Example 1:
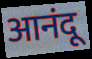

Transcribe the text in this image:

आनंदू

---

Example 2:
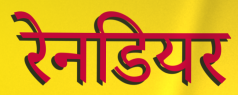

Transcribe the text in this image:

रेनडियर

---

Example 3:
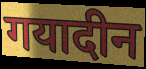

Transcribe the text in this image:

गयादीन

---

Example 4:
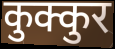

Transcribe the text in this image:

कुक्कुर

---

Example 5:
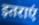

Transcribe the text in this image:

इतराएं